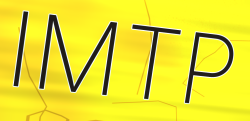
IMTP